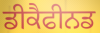
ਡੀਕੈਫੀਨਡ